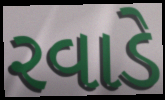
રવાડે